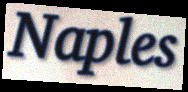
Naples